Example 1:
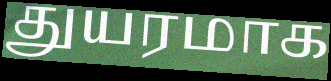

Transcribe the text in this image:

துயரமாக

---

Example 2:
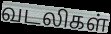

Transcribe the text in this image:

வடலிகள்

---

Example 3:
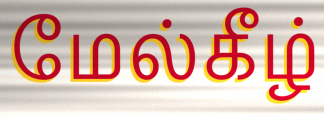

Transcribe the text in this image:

மேல்கீழ்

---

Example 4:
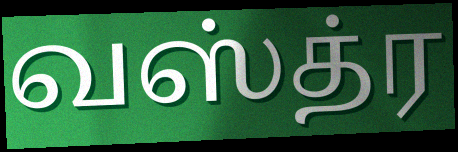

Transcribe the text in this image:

வஸ்த்ர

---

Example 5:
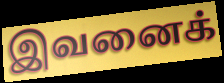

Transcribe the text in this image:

இவனைக்